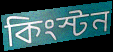
কিংস্টন